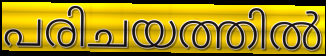
പരിചയത്തിൽ